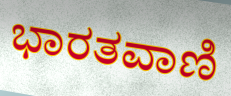
ಭಾರತವಾಣಿ